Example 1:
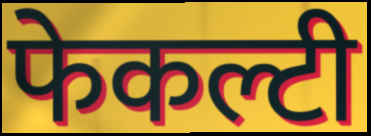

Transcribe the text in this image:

फेकल्टी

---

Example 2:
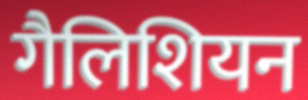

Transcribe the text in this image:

गैलिशियन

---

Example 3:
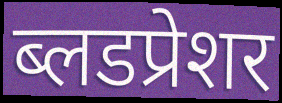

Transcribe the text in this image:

ब्लडप्रेशर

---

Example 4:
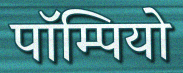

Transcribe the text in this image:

पॉम्पियो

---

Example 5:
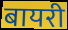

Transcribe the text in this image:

बायरी